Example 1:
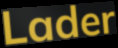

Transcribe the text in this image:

Lader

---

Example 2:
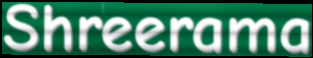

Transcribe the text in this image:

Shreerama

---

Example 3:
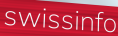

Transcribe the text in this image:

swissinfo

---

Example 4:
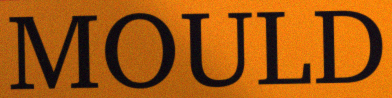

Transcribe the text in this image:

MOULD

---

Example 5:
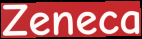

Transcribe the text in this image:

Zeneca